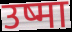
उष्मा